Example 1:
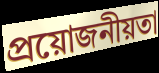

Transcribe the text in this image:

প্রয়োজনীয়তা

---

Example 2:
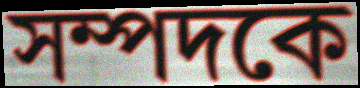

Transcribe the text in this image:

সম্পদকে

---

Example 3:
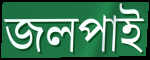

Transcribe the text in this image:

জলপাই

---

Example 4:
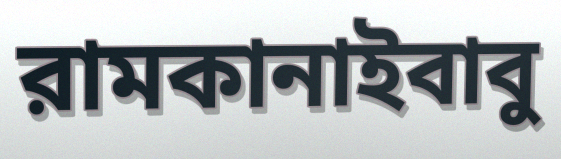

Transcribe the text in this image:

রামকানাইবাবু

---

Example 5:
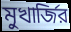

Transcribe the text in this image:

মুখার্জির